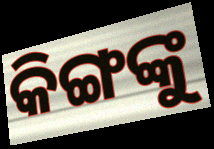
କିଙ୍ଗଙ୍କୁ